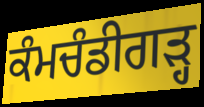
ਕੰਮਚੰਡੀਗੜ੍ਹ